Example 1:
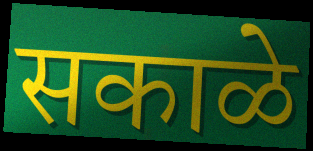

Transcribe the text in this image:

सकाळे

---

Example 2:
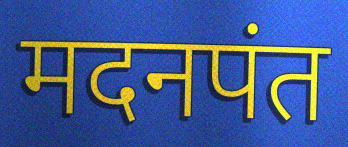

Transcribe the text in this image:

मदनपंत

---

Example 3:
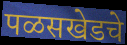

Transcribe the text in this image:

पळसखेडचे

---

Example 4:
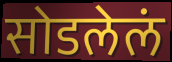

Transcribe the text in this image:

सोडलेलं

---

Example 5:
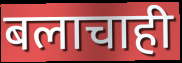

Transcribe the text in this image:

बलाचाही